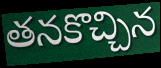
తనకొచ్చిన